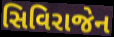
સિવિરાજેન